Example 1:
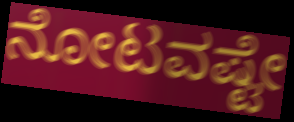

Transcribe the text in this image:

ನೋಟವಷ್ಟೇ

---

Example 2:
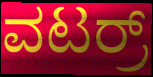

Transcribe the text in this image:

ವಟರ್ರ್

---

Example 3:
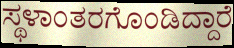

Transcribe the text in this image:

ಸ್ಥಳಾಂತರಗೊಂಡಿದ್ದಾರೆ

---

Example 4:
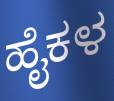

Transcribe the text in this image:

ಹೈಕಳ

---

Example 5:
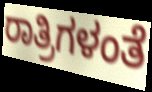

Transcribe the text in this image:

ರಾತ್ರಿಗಳಂತೆ